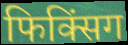
फिक्सिंग